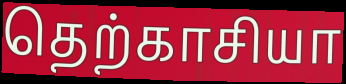
தெற்காசியா